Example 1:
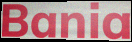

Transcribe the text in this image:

Bania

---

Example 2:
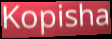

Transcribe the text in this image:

Kopisha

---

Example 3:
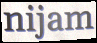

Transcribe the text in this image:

nijam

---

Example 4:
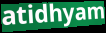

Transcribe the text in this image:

atidhyam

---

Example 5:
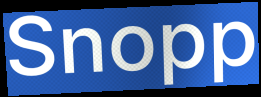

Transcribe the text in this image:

Snopp